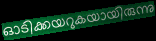
ഓടിക്കയറുകയായിരുന്നു